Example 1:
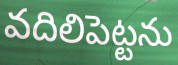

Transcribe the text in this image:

వదిలిపెట్టను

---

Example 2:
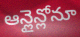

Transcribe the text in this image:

ఆన్లైన్లోనూ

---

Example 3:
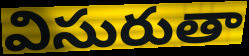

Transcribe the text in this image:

విసురుతా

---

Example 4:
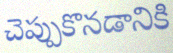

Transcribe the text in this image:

చెప్పుకొనడానికి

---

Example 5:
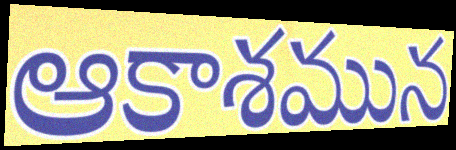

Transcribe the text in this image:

ఆకాశమున